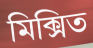
মিক্সিত